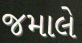
જમાલે